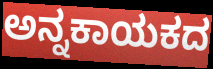
ಅನ್ನಕಾಯಕದ